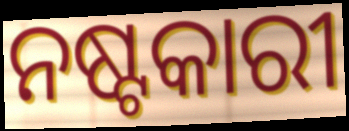
ନଷ୍ଟକାରୀ